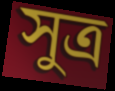
সুত্র